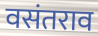
वसंतराव